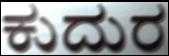
ಕುದುರ